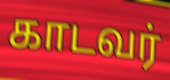
காடவர்